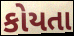
કોયતા